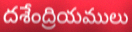
దశేంద్రియములు